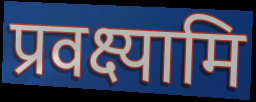
प्रवक्ष्यामि